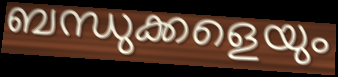
ബന്ധുക്കളെയും